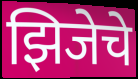
झिजेचे